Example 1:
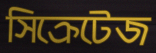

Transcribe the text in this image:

সিক্রেটেজ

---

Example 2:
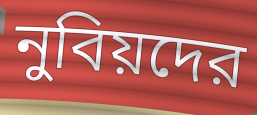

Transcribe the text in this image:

নুবিয়দের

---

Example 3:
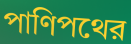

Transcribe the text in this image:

পাণিপথের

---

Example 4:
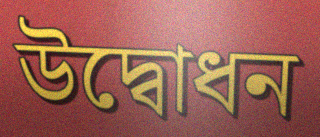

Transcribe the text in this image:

উদ্বোধন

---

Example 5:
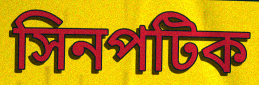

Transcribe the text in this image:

সিনপটিক